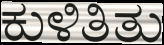
ಕುಳಿತಿತು